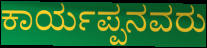
ಕಾರ್ಯಪ್ಪನವರು